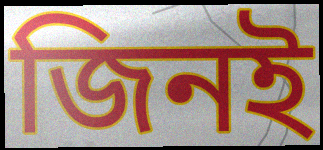
জিনই